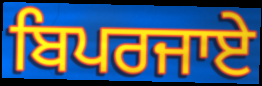
ਬਿਪਰਜਾਏ